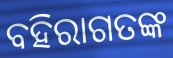
ବହିରାଗତଙ୍କ